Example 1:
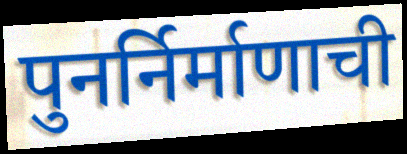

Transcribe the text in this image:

पुनर्निर्माणाची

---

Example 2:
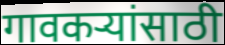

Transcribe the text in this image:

गावकऱ्यांसाठी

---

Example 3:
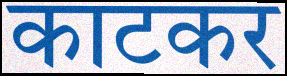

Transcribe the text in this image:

काटकर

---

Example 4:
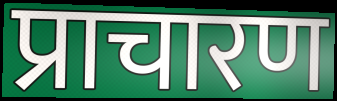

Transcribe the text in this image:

प्राचारण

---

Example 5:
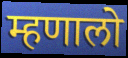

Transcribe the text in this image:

म्हणालो